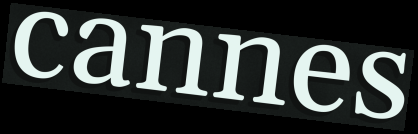
cannes